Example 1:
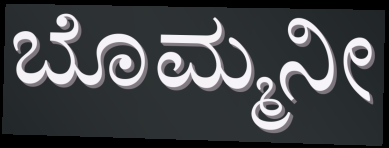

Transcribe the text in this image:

ಬೊಮ್ಮನೀ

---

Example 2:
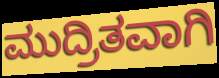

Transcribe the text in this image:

ಮುದ್ರಿತವಾಗಿ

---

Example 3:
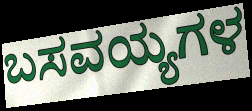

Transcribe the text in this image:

ಬಸವಯ್ಯಗಳ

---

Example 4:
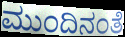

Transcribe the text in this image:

ಮುಂದಿನಂತೆ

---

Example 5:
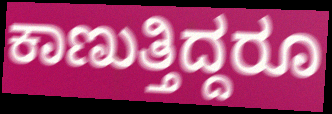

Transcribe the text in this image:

ಕಾಣುತ್ತಿದ್ದರೂ